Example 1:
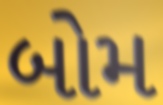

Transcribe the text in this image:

બોમ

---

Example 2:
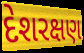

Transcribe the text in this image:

દેશરક્ષણ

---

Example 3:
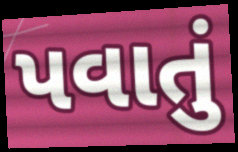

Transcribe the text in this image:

પવાતું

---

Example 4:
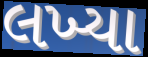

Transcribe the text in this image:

લખ્યા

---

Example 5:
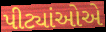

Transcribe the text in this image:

પીટ્યાંઓએ